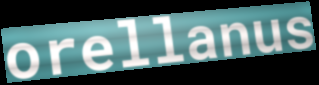
orellanus